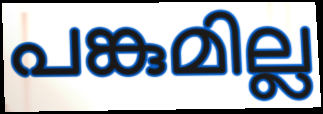
പങ്കുമില്ല